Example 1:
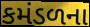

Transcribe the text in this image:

કમંડળના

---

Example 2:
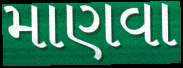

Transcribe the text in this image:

માણવા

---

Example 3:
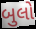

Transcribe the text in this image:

બુલો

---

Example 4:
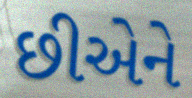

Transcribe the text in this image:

છીએને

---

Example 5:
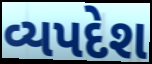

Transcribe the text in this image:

વ્યપદેશ